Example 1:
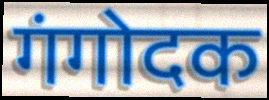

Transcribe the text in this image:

गंगोदक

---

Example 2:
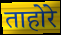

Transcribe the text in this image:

ताहोरे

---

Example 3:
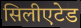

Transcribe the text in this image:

सिलीएटेड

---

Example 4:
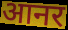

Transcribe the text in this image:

आनर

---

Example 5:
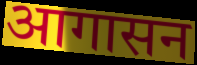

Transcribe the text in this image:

आगासन